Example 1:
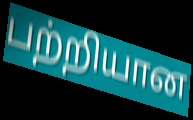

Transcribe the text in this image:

பற்றியான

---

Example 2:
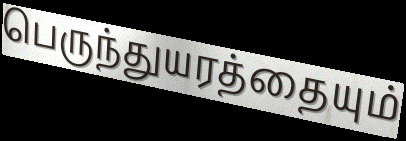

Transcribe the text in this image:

பெருந்துயரத்தையும்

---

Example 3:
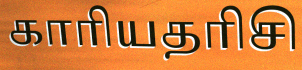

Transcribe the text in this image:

காரியதரிசி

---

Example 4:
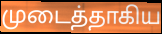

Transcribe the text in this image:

முடைத்தாகிய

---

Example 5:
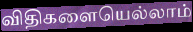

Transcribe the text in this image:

விதிகளையெல்லாம்